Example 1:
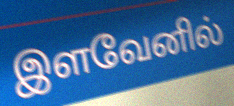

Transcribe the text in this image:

இளவேனில்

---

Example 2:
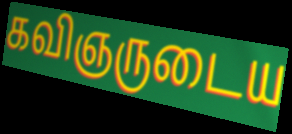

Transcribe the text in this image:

கவிஞருடைய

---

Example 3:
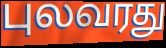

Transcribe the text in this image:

புலவரது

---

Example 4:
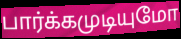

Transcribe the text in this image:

பார்க்கமுடியுமோ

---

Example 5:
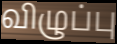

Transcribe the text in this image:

விழுப்பு